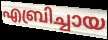
എബ്രിച്ചായ